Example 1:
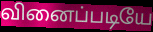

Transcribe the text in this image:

வினைப்படியே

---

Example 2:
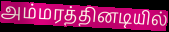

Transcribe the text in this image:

அம்மரத்தினடியில்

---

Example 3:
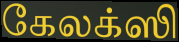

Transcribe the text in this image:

கேலக்ஸி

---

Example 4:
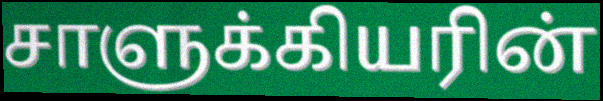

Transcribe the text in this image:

சாளுக்கியரின்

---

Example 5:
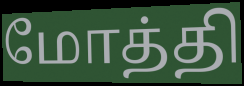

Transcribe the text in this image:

மோத்தி